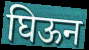
घिऊन